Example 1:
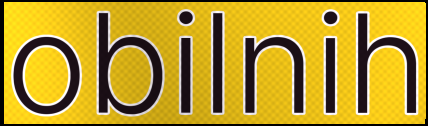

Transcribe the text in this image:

obilnih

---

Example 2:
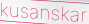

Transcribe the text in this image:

kusanskar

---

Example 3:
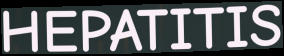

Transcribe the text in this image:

HEPATITIS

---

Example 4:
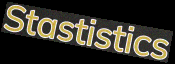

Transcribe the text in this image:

Stastistics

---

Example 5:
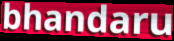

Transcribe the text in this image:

bhandaru